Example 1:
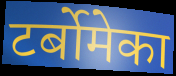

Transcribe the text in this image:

टर्बोमेका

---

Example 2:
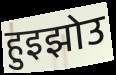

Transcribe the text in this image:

हुइझोउ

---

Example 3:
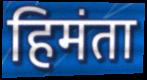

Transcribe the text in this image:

हिमंता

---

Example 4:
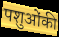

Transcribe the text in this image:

पशुओंकी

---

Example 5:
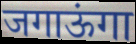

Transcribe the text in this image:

जगाऊंगा